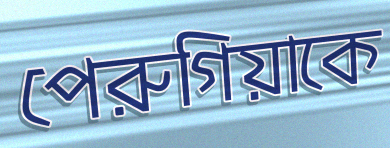
পেরুগিয়াকে